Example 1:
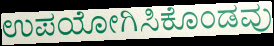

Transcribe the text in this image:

ಉಪಯೋಗಿಸಿಕೊಂಡವು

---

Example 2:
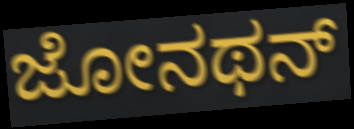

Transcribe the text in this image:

ಜೋನಥನ್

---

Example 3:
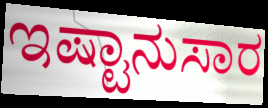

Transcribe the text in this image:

ಇಷ್ಟಾನುಸಾರ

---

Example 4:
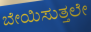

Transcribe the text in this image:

ಬೇಯಿಸುತ್ತಲೇ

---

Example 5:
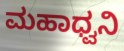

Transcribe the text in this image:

ಮಹಾಧ್ವನಿ